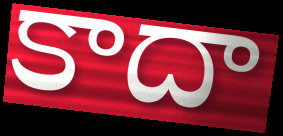
కాదా